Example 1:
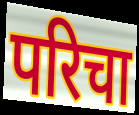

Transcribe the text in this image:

परिचा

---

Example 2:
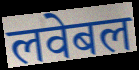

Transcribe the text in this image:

लवेबल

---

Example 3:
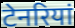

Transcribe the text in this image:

टेनरियां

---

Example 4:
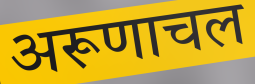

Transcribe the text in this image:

अरूणाचल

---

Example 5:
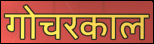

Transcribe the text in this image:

गोचरकाल